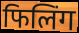
फिलिंग